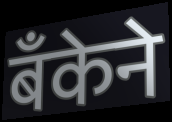
बँकेने